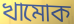
খামোক